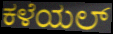
ಕಳೆಯಲ್